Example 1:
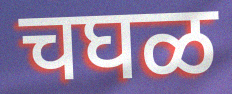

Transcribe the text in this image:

चघळ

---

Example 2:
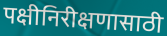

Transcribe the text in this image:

पक्षीनिरीक्षणासाठी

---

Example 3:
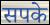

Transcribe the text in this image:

सपके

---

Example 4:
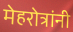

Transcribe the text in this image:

मेहरोत्रांनी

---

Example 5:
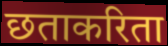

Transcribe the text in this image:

छताकरिता